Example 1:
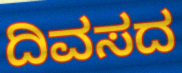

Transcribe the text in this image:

ದಿವಸದ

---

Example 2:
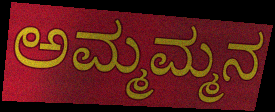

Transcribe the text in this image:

ಅಮ್ಮಮ್ಮನ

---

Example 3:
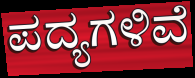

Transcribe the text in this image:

ಪದ್ಯಗಳಿವೆ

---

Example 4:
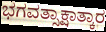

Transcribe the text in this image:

ಭಗವತ್ಸಾಕ್ಷಾತ್ಕಾರ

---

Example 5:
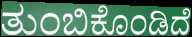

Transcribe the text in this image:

ತುಂಬಿಕೊಂಡಿದೆ